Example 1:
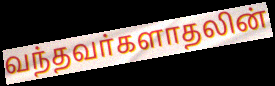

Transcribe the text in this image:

வந்தவர்களாதலின்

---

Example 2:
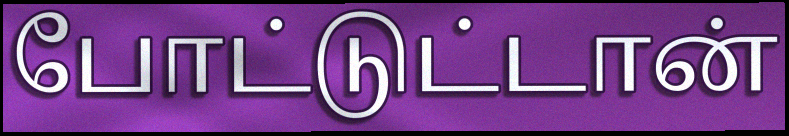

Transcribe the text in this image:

போட்டுட்டான்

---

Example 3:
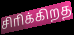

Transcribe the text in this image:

சிரிக்கிறத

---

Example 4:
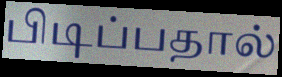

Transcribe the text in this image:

பிடிப்பதால்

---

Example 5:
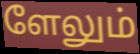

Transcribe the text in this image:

ளேலும்